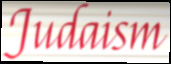
Judaism